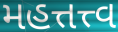
મહત્તત્ત્વ